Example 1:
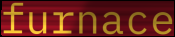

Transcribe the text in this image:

furnace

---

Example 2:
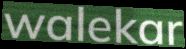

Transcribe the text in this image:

walekar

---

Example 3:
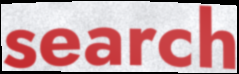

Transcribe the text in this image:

search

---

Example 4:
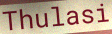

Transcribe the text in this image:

Thulasi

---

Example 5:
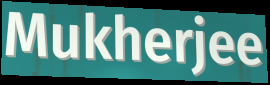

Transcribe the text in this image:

Mukherjee